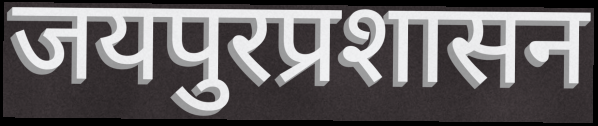
जयपुरप्रशासन